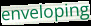
enveloping